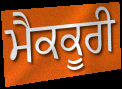
ਮੈਕਕੂਰੀ